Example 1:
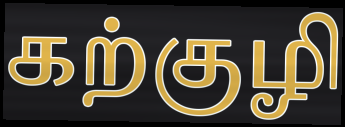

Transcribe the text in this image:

கற்குழி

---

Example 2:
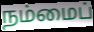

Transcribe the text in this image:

நம்மைப்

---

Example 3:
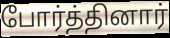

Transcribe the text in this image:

போர்த்தினார்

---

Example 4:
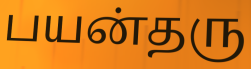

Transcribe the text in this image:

பயன்தரு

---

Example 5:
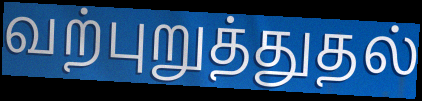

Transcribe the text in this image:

வற்புறுத்துதல்